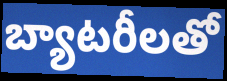
బ్యాటరీలతో